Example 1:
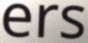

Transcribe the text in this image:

ers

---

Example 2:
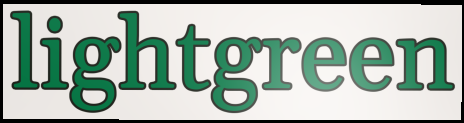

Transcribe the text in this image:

lightgreen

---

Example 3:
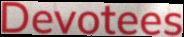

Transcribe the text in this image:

Devotees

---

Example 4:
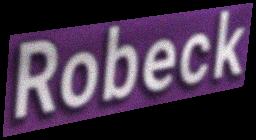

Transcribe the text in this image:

Robeck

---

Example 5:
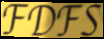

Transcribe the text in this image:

FDFS